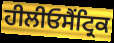
ਹੀਲੀਓਸੈਂਟ੍ਰਿਕ